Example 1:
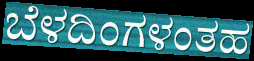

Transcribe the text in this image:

ಬೆಳದಿಂಗಳಂತಹ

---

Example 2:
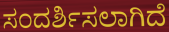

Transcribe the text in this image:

ಸಂದರ್ಶಿಸಲಾಗಿದೆ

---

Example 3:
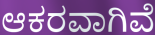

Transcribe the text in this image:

ಆಕರವಾಗಿವೆ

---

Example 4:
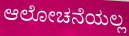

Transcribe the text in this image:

ಆಲೋಚನೆಯಲ್ಲ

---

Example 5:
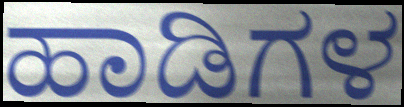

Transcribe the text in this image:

ಹಾಡಿಗಳ